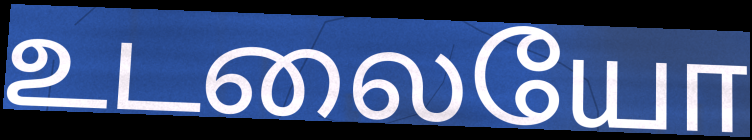
உடலையோ